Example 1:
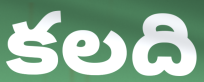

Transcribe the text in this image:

కలది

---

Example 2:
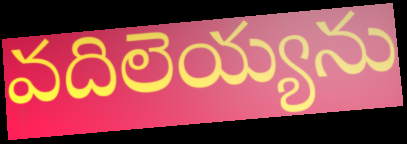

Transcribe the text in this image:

వదిలెయ్యను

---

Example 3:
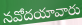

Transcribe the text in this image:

నవోదయావారు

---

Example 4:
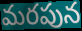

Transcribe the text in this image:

మరపున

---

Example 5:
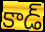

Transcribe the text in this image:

కాడ్